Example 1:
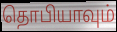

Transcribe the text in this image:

தொபியாவும்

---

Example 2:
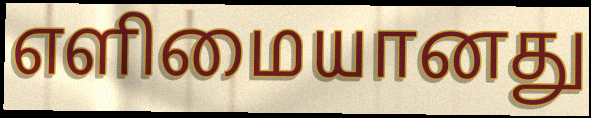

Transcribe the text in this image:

எளிமையானது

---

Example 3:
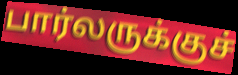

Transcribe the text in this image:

பார்லருக்குச்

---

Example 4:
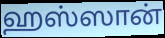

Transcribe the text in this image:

ஹஸ்ஸான்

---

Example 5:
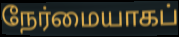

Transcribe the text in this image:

நேர்மையாகப்